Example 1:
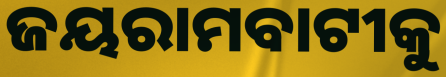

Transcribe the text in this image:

ଜୟରାମବାଟୀକୁ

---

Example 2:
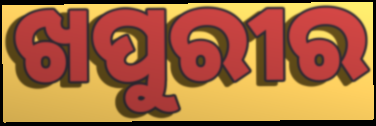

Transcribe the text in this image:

ଖପୁରୀର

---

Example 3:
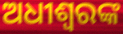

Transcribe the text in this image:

ଅଧୀଶ୍ୱରଙ୍କ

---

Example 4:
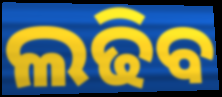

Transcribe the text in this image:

ଲଢିବ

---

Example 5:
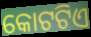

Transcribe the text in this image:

କୋଟଟିଏ